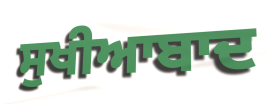
ਸੁਖੀਆਬਾਦ